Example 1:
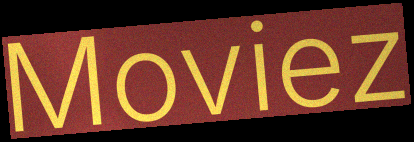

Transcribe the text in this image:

Moviez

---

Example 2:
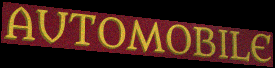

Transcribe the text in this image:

AUTOMOBILE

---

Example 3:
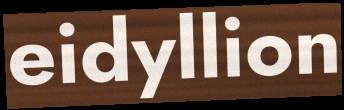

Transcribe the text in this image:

eidyllion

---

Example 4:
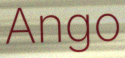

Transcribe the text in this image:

Ango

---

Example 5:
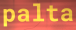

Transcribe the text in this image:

palta